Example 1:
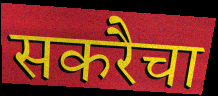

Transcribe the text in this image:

सकरैचा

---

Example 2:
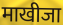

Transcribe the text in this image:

माखीजा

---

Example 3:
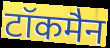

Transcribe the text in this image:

टॉकमैन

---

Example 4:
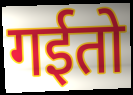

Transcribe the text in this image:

गईतो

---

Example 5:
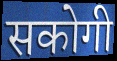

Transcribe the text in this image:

सकोगी